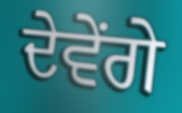
ਦੇਵੇਂਗੇ